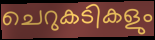
ചെറുകടികളും